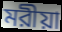
মরীয়া